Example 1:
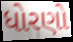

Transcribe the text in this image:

ધોરણો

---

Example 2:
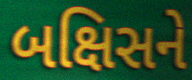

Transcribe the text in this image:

બક્ષિસને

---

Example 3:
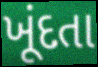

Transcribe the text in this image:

ખૂંદતા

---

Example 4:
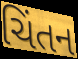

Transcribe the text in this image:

ચિંતન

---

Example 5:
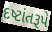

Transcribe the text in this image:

દષ્ટાંતરૂપે